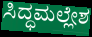
ಸಿದ್ಧಮಲ್ಲೇಶ